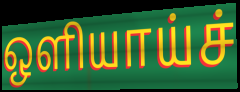
ஒளியாய்ச்